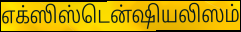
எக்ஸிஸ்டென்ஷியலிஸம்